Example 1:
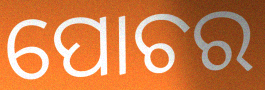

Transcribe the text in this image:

ପୋଚର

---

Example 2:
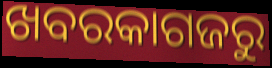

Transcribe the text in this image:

ଖବରକାଗଜରୁ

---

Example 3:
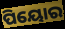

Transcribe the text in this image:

ପିୟୋର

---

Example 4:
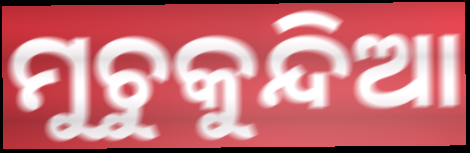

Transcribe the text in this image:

ମୁଚୁକୁନ୍ଦିଆ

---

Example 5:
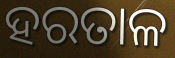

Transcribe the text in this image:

ହରତାଳ